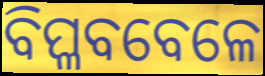
ବିପ୍ଳବବେଳେ